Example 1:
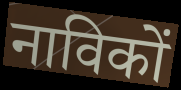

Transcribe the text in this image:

नाविकों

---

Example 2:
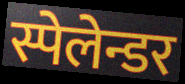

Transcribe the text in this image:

स्पेलेन्डर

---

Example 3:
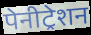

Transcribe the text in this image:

पेनीट्रेशन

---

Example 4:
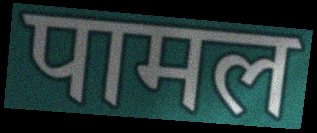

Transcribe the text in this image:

पामल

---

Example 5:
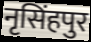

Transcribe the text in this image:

नृसिंहपुर